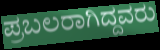
ಪ್ರಬಲರಾಗಿದ್ದವರು